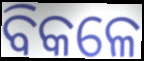
ବିକଳେ